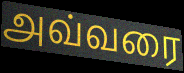
அவ்வரை